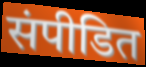
संपीडित